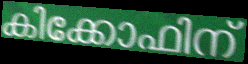
കിക്കോഫിന്